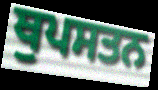
ਥੁਪਸਤਨ